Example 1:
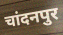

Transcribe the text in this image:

चांदनपुर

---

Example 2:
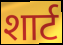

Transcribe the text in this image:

शार्ट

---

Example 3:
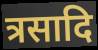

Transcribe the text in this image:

त्रसादि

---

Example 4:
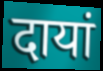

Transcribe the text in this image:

दायां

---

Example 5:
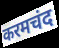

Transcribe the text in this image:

करमचंद